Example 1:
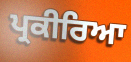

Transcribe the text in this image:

ਪ੍ਰਕੀਰਿਆ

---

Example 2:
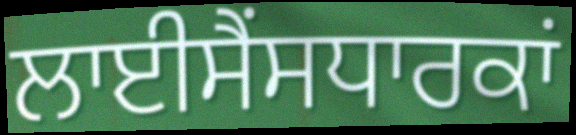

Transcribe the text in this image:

ਲਾਈਸੈਂਸਧਾਰਕਾਂ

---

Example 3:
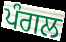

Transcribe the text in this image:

ਪੰਗਲ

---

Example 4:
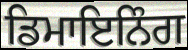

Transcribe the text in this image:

ਡਿਮਾਇਨਿੰਗ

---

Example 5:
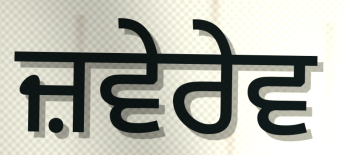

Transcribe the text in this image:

ਜ਼ਵੇਰੇਵ